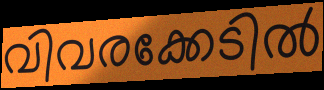
വിവരക്കേടിൽ